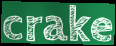
crake